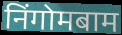
निंगोमबाम